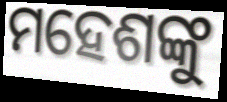
ମହେଶଙ୍କୁ